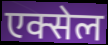
एक्सेल